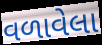
વળાવેલા